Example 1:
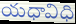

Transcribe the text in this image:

యధావిధి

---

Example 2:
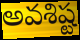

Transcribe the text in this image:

అవశిష్ట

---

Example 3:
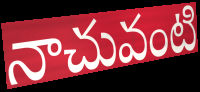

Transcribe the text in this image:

నాచువంటి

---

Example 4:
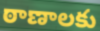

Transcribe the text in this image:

ఠాణాలకు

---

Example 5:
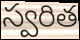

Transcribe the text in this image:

స్వరిత